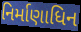
નિર્માણાધિન